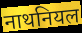
नाथनियल